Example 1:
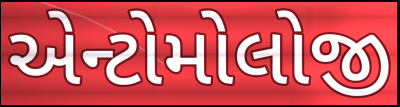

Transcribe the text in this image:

એન્ટોમોલોજી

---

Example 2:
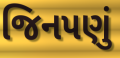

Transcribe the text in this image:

જિનપણું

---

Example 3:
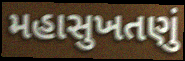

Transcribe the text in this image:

મહાસુખતણું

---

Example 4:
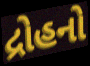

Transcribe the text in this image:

દ્રોહનો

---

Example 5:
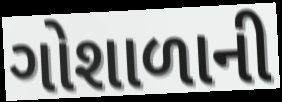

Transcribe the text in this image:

ગોશાળાની